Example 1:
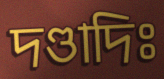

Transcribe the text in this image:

দণ্ডাদিঃ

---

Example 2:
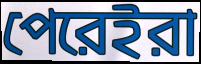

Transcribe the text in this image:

পেরেইরা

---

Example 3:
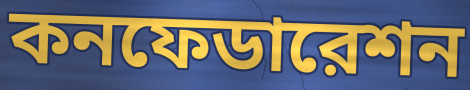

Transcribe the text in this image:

কনফেডারেশন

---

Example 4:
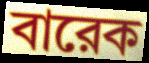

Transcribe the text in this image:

বারেক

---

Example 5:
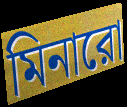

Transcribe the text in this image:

মিনারো